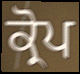
ਕ੍ਰੋਪ